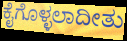
ಕೈಗೊಳ್ಳಲಾದೀತು